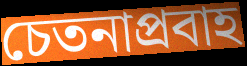
চেতনাপ্রবাহ